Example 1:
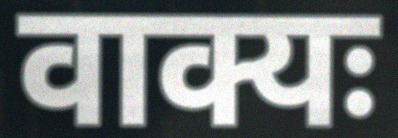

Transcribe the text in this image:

वाक्यः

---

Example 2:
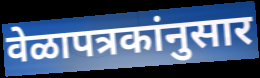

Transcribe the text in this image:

वेळापत्रकांनुसार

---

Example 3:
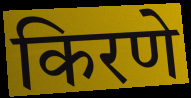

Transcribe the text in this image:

किरणे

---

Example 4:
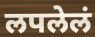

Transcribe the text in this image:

लपलेलं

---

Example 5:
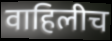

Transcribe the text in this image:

वाहिलीच